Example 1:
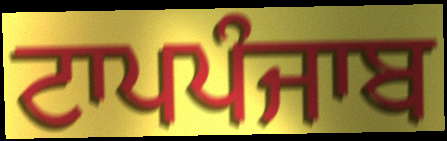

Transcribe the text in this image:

ਟਾਪਪੰਜਾਬ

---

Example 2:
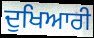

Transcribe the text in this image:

ਦੁਖਿਆਰੀ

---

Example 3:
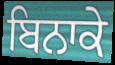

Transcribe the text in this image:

ਬਿਨਾਕੇ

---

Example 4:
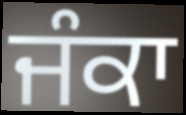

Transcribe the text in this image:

ਜੰਕਾ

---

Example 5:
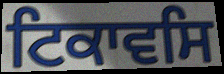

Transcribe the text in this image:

ਟਿਕਾਵਸਿ